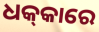
ଧକ୍‌କାରେ